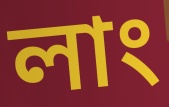
লাং